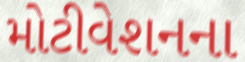
મોટીવેશનના